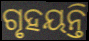
ଗୃହୟନ୍ତି